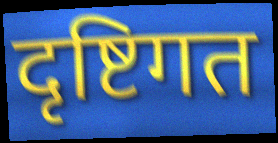
दृष्टिगत